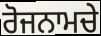
ਰੋਜਨਾਮਚੇ